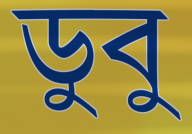
ডুবু